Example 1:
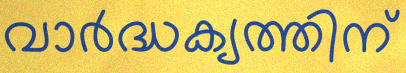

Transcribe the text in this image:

വാർദ്ധക്യത്തിന്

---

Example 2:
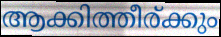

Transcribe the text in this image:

ആക്കിത്തീര്ക്കും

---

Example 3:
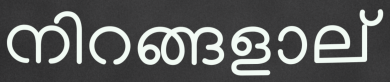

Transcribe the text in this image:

നിറങ്ങളാല്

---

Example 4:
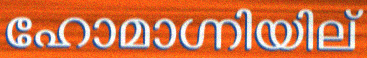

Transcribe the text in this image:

ഹോമാഗ്നിയില്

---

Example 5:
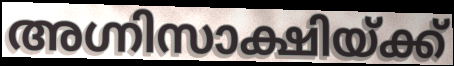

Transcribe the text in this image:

അഗ്നിസാക്ഷിയ്ക്ക്